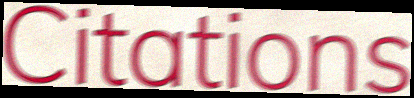
Citations